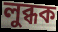
লুব্ধক